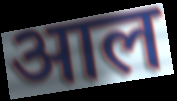
आल